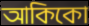
আকিকো